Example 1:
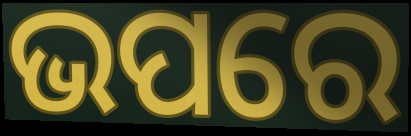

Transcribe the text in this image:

ଭପରେ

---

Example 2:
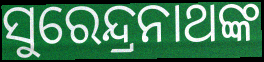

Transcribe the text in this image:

ସୁରେନ୍ଦ୍ରନାଥଙ୍କ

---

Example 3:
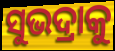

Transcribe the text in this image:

ସୁଭଦ୍ରାକୁ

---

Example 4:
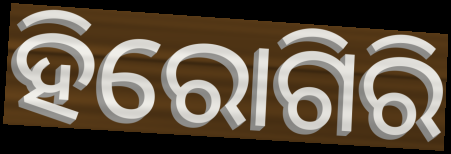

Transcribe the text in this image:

ହିରୋଗିରି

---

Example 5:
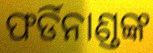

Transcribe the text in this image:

ଫର୍ଡିନାଣ୍ଡଙ୍କ